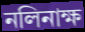
নলিনাক্ষ